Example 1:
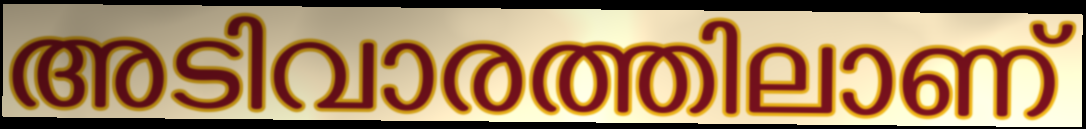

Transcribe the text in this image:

അടിവാരത്തിലാണ്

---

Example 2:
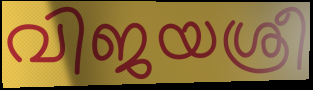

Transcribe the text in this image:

വിജയശ്രീ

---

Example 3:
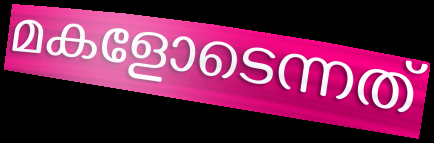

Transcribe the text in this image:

മകളോടെന്നത്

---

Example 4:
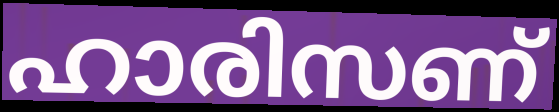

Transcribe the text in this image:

ഹാരിസണ്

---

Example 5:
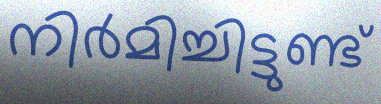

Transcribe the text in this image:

നിർമിച്ചിട്ടുണ്ട്